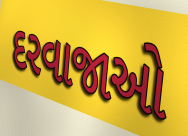
દરવાજાઓ